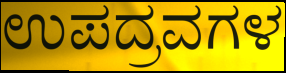
ಉಪದ್ರವಗಳ